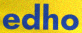
edho